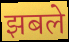
झबले